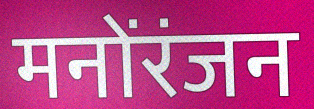
मनोंरंजन